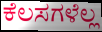
ಕೆಲಸಗಳೆಲ್ಲ